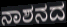
ನಾಶನದ